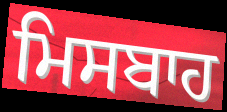
ਮਿਸਬਾਹ